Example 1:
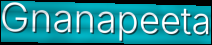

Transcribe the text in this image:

Gnanapeeta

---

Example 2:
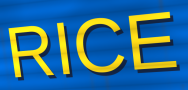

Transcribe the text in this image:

RICE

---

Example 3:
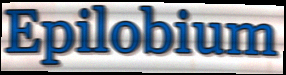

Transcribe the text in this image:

Epilobium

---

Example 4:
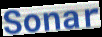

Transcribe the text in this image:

Sonar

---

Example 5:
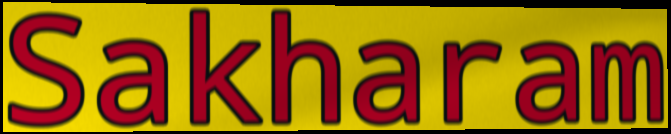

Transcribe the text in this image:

Sakharam